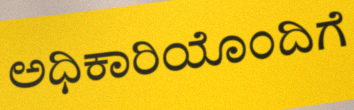
ಅಧಿಕಾರಿಯೊಂದಿಗೆ